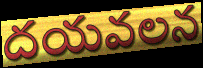
దయవలన